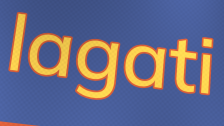
lagati